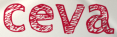
ceva